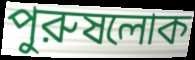
পুরুষলোক